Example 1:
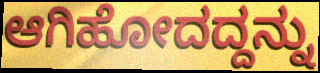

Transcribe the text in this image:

ಆಗಿಹೋದದ್ದನ್ನು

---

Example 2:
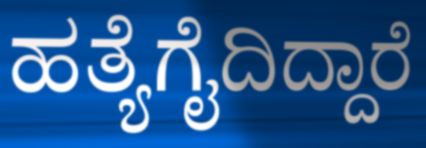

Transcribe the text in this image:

ಹತ್ಯೆಗೈದಿದ್ದಾರೆ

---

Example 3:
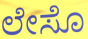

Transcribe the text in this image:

ಲೇಸೊ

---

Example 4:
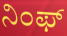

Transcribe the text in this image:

ನಿಂಫ್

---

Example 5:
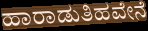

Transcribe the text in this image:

ಹಾರಾಡುತಿಹವೇನೆ